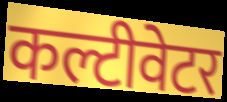
कल्टीवेटर